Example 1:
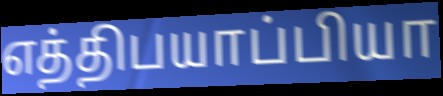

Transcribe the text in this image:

எத்திபயாப்பியா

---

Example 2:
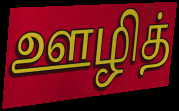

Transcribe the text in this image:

ஊழித்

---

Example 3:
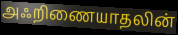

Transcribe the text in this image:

அஃறிணையாதலின்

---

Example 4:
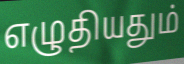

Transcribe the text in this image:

எழுதியதும்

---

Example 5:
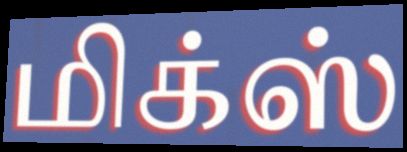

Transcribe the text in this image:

மிக்ஸ்